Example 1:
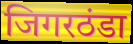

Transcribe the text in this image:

जिगरठंडा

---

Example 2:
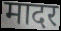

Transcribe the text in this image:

मादर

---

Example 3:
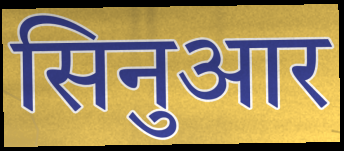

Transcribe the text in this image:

सिनुआर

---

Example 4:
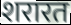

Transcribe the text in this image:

शरारत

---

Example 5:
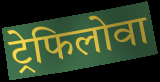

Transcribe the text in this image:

ट्रेफिलोवा